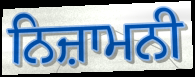
ਨਿਜ਼ਾਮਨੀ